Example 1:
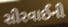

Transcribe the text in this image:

સીરવાઈની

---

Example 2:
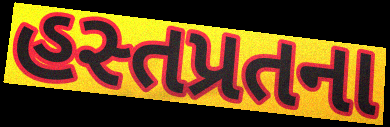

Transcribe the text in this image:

હસ્તપ્રતના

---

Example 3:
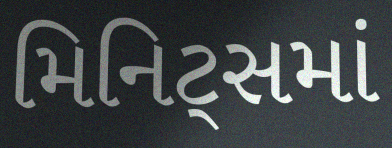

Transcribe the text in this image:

મિનિટ્સમાં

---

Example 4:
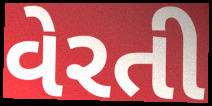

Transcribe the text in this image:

વેરતી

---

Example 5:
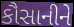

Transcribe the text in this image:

કૌસાનીને